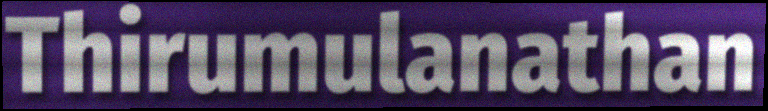
Thirumulanathan